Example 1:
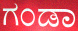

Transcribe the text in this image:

ಗಂಡಾ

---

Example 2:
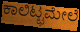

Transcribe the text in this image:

ಕಾಲಿಟ್ಟಮೇಲೆ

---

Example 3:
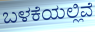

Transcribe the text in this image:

ಬಳಕೆಯಲ್ಲಿವೆ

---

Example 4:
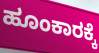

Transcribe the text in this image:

ಹೂಂಕಾರಕ್ಕೆ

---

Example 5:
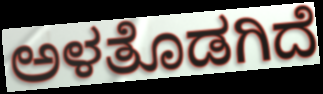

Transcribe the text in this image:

ಅಳತೊಡಗಿದೆ